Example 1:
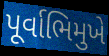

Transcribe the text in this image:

પૂર્વાભિમુખે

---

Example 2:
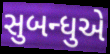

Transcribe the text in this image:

સુબન્ધુએ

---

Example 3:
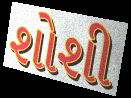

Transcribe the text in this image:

શોશી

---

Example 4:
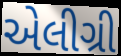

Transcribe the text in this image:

એલીગ્રી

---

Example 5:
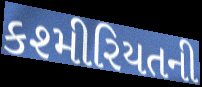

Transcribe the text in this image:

કશ્મીરિયતની